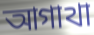
আগাথা